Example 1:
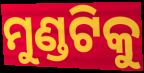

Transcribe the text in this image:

ମୁଣ୍ଡଟିକୁ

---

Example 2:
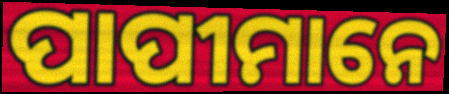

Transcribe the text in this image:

ପାପୀମାନେ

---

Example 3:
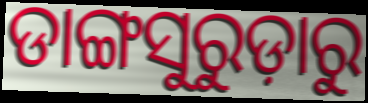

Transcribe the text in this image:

ଡାଙ୍ଗସୁରୁଡ଼ାରୁ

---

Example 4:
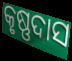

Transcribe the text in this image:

କୃଷ୍ଣଦାସ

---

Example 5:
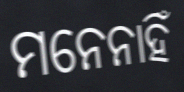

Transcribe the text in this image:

ମନେନାହିଁ